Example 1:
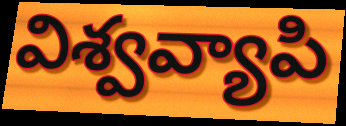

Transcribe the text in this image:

విశ్వవ్యాపి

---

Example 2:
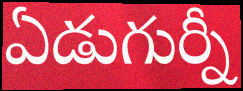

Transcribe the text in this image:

ఏడుగుర్నీ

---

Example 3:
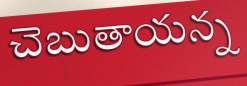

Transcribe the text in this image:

చెబుతాయన్న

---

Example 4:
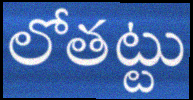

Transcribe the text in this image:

లోతట్టు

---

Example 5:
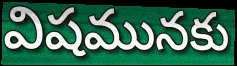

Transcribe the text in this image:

విషమునకు